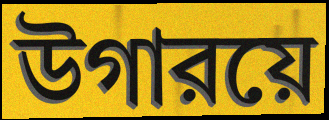
উগারয়ে